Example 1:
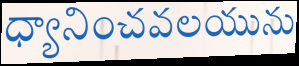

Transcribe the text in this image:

ధ్యానించవలయును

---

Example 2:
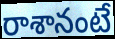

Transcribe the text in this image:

రాశానంటే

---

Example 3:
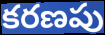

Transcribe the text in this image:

కరణపు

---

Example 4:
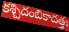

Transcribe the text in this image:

కశ్చిదంబికాదత్తః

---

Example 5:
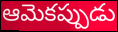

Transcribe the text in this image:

ఆమెకప్పుడు